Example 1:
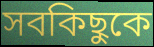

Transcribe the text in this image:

সবকিছুকে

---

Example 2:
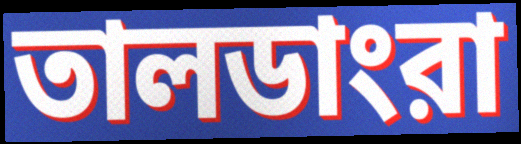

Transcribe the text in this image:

তালডাংরা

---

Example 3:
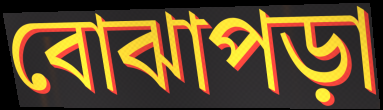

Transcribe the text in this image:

বোঝাপড়া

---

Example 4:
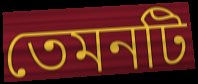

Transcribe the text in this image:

তেমনটি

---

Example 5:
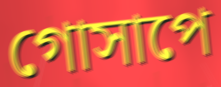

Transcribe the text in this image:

গোসাপে